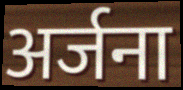
अर्जना